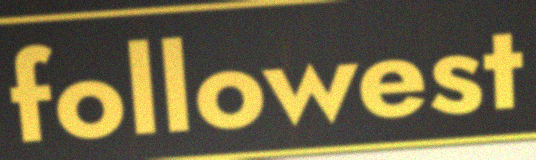
followest